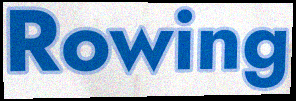
Rowing